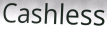
Cashless